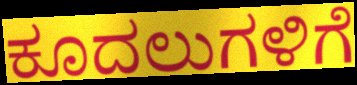
ಕೂದಲುಗಳಿಗೆ